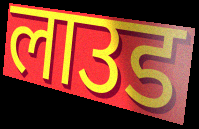
लाउड